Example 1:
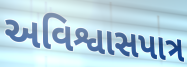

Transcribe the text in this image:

અવિશ્વાસપાત્ર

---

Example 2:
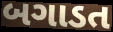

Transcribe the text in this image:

બગાડત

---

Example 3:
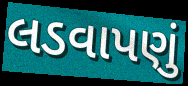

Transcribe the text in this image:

લડવાપણું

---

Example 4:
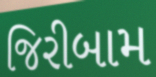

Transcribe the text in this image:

જિરીબામ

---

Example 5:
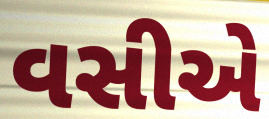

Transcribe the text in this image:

વસીએ